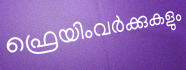
ഫ്രെയിംവർക്കുകളും